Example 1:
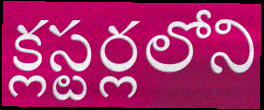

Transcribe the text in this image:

క్లస్టర్లలోని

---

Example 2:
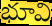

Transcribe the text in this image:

భూవి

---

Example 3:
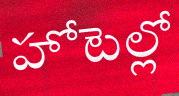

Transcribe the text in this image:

హోటెల్లో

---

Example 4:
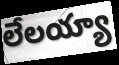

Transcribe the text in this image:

లేలయ్యా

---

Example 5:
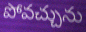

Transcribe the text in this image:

పోవచ్చును